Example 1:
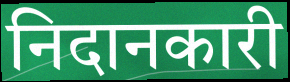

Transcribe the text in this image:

निदानकारी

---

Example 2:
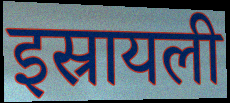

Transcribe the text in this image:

इस्रायली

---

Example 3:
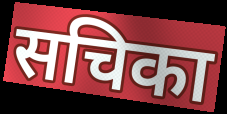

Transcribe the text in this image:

सचिका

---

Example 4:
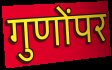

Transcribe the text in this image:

गुणोंपर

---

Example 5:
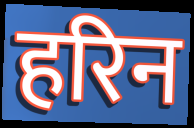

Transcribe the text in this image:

हरिन